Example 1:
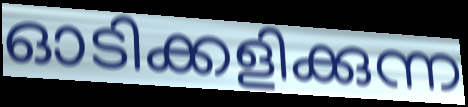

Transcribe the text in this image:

ഓടിക്കളിക്കുന്ന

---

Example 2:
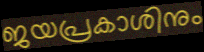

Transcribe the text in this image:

ജയപ്രകാശിനും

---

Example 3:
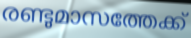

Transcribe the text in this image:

രണ്ടുമാസത്തേക്ക്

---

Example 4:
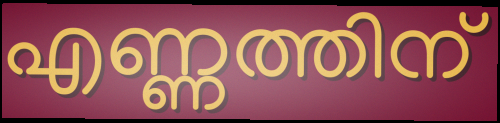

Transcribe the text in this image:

എണ്ണത്തിന്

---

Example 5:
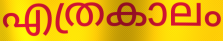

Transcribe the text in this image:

എത്രകാലം